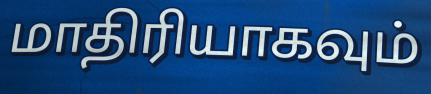
மாதிரியாகவும்